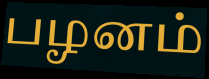
பழனம்